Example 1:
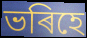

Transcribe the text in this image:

ভৰিহে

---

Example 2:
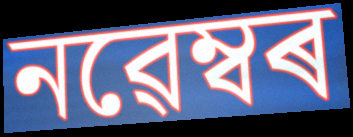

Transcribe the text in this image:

নৱেম্বৰ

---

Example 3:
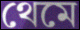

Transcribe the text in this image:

থেমে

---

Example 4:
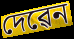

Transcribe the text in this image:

দেৱেন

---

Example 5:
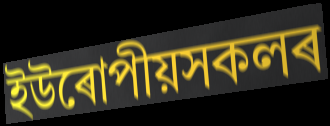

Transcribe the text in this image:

ইউৰোপীয়সকলৰ